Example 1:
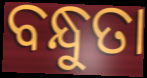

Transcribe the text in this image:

ବନ୍ଧୁତା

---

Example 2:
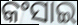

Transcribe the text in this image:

କଂସାଇ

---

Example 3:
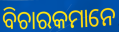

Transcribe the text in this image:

ବିଚାରକମାନେ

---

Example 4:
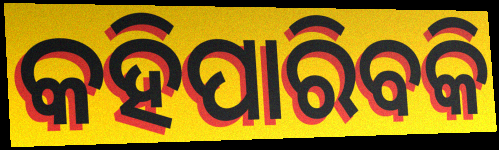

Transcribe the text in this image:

କହିପାରିବକି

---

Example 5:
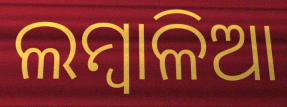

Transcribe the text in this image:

ଲମ୍ବାଳିଆ